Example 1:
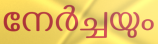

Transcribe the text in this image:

നേർച്ചയും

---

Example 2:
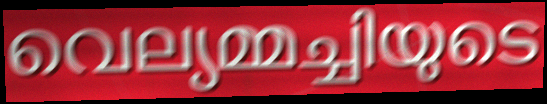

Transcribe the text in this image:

വെല്യമ്മച്ചിയുടെ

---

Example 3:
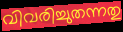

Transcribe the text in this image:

വിവരിച്ചുതന്നതു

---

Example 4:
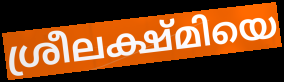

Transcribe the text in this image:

ശ്രീലക്ഷ്മിയെ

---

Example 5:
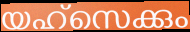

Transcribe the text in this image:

യഹ്സെക്കും